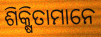
ଶିକ୍ଷିତାମାନେ